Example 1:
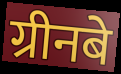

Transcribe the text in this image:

ग्रीनबे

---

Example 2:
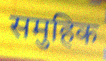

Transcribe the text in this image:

समुहिक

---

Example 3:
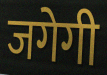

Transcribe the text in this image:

जगेगी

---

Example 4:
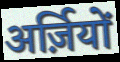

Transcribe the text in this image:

अर्ज़ियों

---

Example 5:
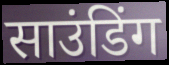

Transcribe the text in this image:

साउंडिंग